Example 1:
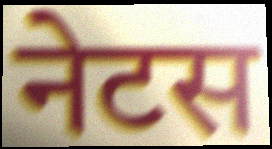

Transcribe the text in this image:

नेटस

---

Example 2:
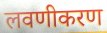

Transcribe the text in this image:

लवणीकरण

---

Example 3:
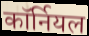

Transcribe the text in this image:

कॉर्नियल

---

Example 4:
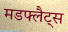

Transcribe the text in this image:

मडफ्लैट्स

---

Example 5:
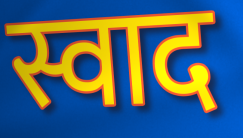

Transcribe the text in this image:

स्वाद